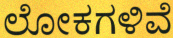
ಲೋಕಗಳಿವೆ